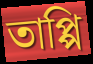
তাপ্পি